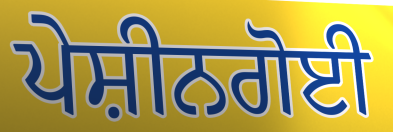
ਪੇਸ਼ੀਨਗੋਈ